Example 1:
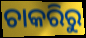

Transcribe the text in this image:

ଚାକରିରୁ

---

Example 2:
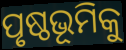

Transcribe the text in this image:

ପୃଷ୍ଠଭୂମିକୁ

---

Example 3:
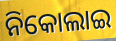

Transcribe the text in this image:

ନିକୋଲାଇ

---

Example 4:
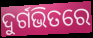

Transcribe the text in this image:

ଦୁର୍ଗଭିତରେ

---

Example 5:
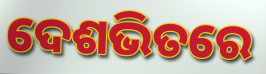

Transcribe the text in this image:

ଦେଶଭିତରେ